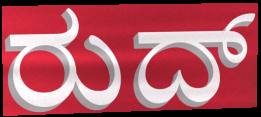
ರುದ್